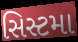
સિસ્ટમા